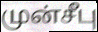
முன்சீபு